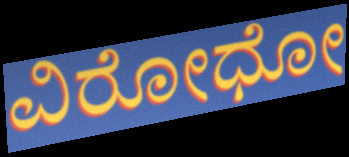
ವಿರೋಧೋ